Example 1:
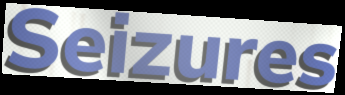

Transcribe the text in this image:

Seizures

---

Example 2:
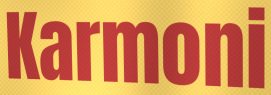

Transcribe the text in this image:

Karmoni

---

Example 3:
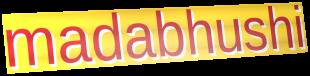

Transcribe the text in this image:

madabhushi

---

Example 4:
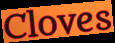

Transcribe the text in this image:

Cloves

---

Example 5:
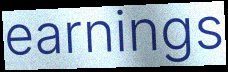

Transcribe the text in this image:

earnings